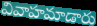
వివాహమాడారు